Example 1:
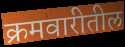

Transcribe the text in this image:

क्रमवारीतील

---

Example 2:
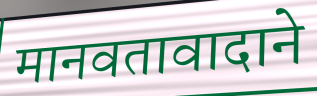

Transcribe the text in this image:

मानवतावादाने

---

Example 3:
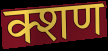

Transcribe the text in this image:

क्शण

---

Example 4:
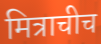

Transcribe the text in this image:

मित्राचीच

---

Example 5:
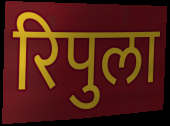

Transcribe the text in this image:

रिपुला